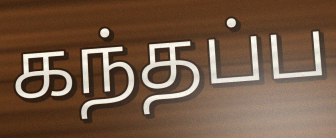
கந்தப்ப